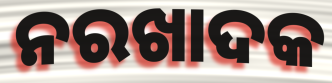
ନରଖାଦକ